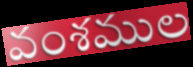
వంశముల